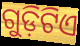
ଗୁଡ଼ିଟିଏ